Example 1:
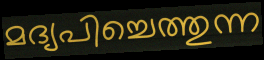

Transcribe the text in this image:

മദ്യപിച്ചെത്തുന്ന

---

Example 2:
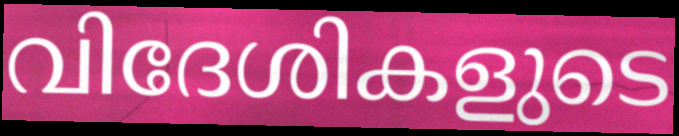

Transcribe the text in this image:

വിദേശികളുടെ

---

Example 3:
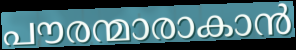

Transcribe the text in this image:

പൗരന്മാരാകാൻ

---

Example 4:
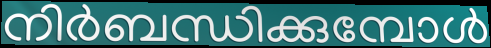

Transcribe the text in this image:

നിർബന്ധിക്കുമ്പോൾ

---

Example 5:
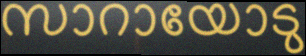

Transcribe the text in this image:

സാറായോടു